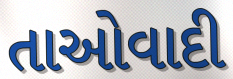
તાઓવાદી